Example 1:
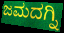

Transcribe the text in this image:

ಜಮದಗ್ನಿ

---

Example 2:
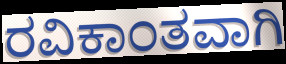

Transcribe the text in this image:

ರವಿಕಾಂತವಾಗಿ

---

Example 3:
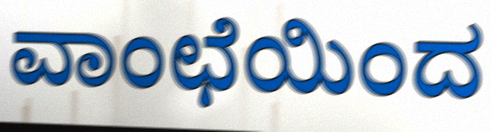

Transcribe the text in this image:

ವಾಂಛೆಯಿಂದ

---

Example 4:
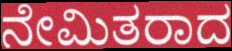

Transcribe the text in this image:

ನೇಮಿತರಾದ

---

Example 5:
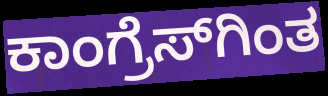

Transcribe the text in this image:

ಕಾಂಗ್ರೆಸ್‌ಗಿಂತ